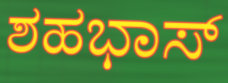
ಶಹಭಾಸ್